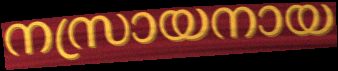
നസ്രായനായ